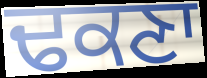
ਢਕਣਾ